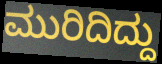
ಮುರಿದಿದ್ದು